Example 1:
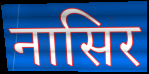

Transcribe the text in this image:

नासिर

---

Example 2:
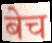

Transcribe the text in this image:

बेच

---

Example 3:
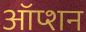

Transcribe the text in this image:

ऑप्‍शन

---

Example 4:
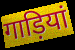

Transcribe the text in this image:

गाड़ियां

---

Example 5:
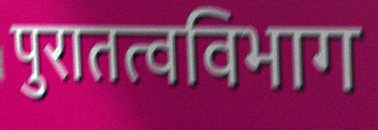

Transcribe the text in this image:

पुरातत्वविभाग